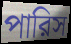
পারিস